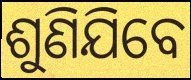
ଶୁଣିଯିବେ